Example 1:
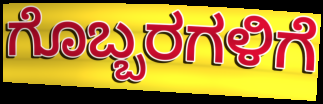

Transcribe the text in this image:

ಗೊಬ್ಬರಗಳಿಗೆ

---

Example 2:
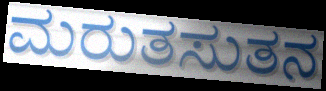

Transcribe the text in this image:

ಮರುತಸುತನ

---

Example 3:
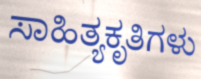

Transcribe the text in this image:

ಸಾಹಿತ್ಯಕೃತಿಗಳು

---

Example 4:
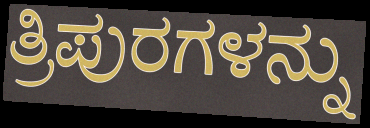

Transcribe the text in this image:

ತ್ರಿಪುರಗಳನ್ನು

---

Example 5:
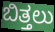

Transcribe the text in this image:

ಬಿತ್ತಲು